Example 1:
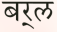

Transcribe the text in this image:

बर्ल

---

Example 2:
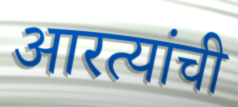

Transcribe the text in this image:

आरत्यांची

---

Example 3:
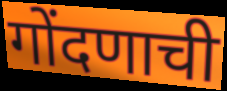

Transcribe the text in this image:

गोंदणाची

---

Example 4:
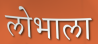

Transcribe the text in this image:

लोभाला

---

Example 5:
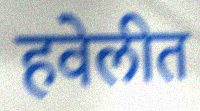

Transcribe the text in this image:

हवेलीत